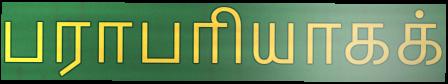
பராபரியாகக்